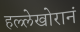
हल्लेखोरानं